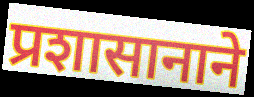
प्रशासानाने